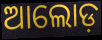
ଆଲୋଡ଼